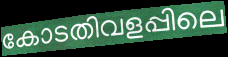
കോടതിവളപ്പിലെ